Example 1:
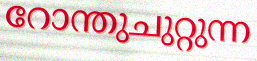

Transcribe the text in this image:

റോന്തുചുറ്റുന്ന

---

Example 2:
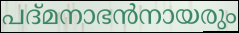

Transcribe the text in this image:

പദ്മനാഭൻനായരും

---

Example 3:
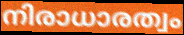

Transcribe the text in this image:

നിരാധാരത്വം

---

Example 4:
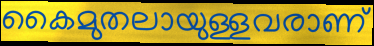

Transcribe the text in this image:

കൈമുതലായുള്ളവരാണ്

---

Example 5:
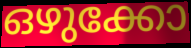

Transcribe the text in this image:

ഒഴുക്കോ